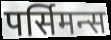
पर्सिमन्स